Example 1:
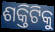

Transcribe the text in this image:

ଶକ୍ତିଟିକୁ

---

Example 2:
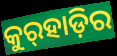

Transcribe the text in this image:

କୁର୍‍ହାଡ଼ିର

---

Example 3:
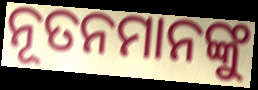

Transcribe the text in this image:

ନୂତନମାନଙ୍କୁ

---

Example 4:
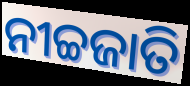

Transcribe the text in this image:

ନୀଚ୍ଚଜାତି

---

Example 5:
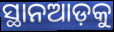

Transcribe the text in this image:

ସ୍ଥାନଆଡ଼କୁ